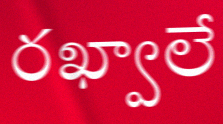
రఖ్వాలే